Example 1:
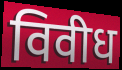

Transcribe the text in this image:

विवीध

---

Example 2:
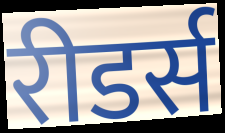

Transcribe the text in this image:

रीडर्स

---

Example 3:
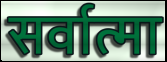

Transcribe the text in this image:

सर्वात्मा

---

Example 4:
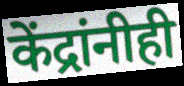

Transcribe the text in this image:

केंद्रांनीही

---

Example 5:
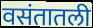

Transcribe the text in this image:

वसंतातली